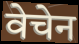
वेचेन